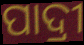
ପାଦ୍ରୀ